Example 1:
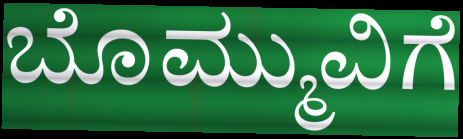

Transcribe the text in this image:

ಬೊಮ್ಮುವಿಗೆ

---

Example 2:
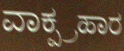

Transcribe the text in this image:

ವಾಕ್ಪ್ರಹಾರ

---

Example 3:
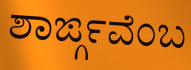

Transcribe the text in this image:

ಶಾರ್ಙ್ಗವೆಂಬ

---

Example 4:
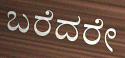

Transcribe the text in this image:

ಬರೆದರೇ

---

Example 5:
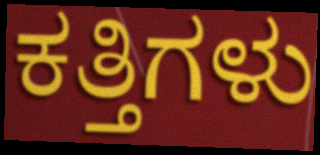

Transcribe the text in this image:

ಕತ್ತಿಗಳು